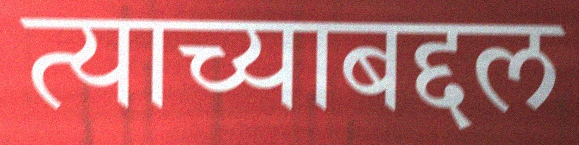
त्याच्याबद्दल